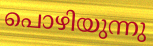
പൊഴിയുന്നു